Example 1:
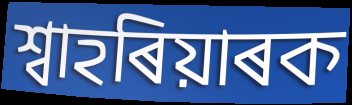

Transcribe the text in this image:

শ্বাহৰিয়াৰক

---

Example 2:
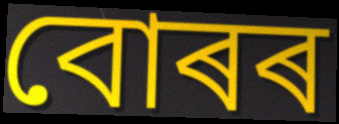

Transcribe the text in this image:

বোৰৰ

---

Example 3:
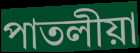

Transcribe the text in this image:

পাতলীয়া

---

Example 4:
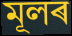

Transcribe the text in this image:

মূলৰ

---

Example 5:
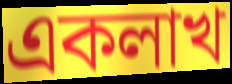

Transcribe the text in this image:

একলাখ